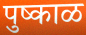
पुष्काळ